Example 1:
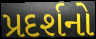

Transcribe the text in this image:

પ્રદર્શનો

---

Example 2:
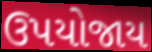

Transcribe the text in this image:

ઉપયોજાય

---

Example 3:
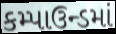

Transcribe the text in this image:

કમ્પાઉન્ડમાં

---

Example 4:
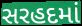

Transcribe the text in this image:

સરહદમાં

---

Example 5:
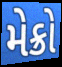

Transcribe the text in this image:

મેક્રો